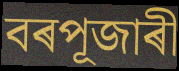
বৰপূজাৰী